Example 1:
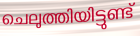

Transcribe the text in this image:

ചെലുത്തിയിട്ടുണ്ട്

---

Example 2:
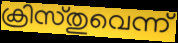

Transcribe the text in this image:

ക്രിസ്തുവെന്ന്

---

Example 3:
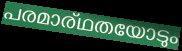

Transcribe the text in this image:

പരമാര്ഥതയോടും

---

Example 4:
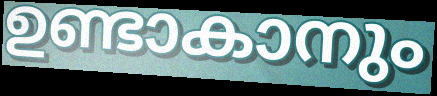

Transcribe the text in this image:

ഉണ്ടാകാനും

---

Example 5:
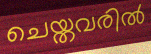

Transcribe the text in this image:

ചെയ്തവരിൽ